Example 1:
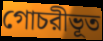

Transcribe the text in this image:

গোচরীভূত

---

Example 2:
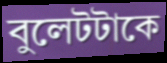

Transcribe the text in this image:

বুলেটটাকে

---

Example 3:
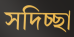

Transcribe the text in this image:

সদিচ্ছা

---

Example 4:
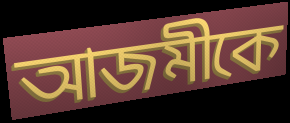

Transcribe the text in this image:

আজমীকে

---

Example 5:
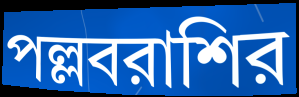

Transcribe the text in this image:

পল্লবরাশির